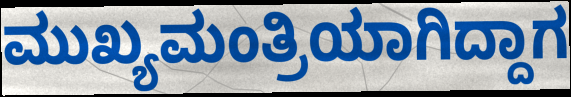
ಮುಖ್ಯಮಂತ್ರಿಯಾಗಿದ್ದಾಗ